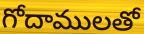
గోదాములతో